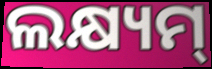
ଲକ୍ଷ୍ୟମ୍